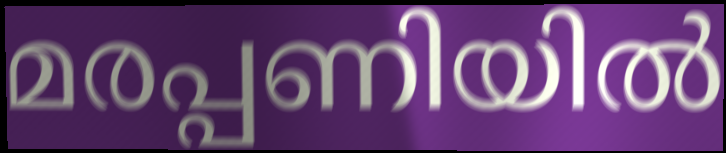
മരപ്പണിയിൽ